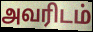
அவரிடம்